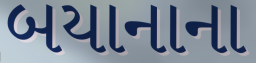
બયાનાના